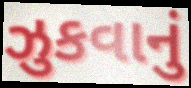
ઝુકવાનું